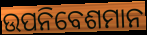
ଉପନିବେଶମାନ